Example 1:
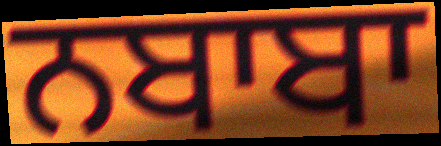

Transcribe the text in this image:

ਨਬਾਬਾ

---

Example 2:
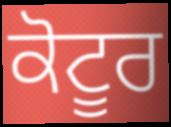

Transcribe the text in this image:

ਕੋਟੂਰ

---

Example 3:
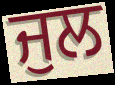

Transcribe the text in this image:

ਜੁਲ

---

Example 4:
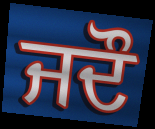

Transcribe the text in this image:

ਜਦੌ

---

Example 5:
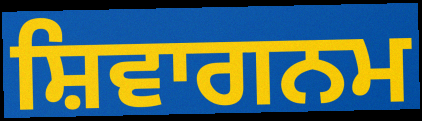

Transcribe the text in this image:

ਸ਼ਿਵਾਗਨਮ